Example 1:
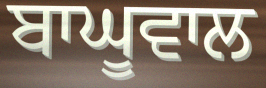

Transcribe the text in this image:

ਬਾਘੂਵਾਲ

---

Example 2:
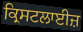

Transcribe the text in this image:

ਕ੍ਰਿਸਟਲਾਈਜ਼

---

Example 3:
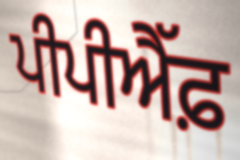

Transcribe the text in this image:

ਪੀਪੀਐੱਫ਼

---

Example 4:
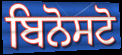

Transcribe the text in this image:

ਬਿਨੋਸਟੋ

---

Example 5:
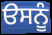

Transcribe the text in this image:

ੳਸਨੂੰ